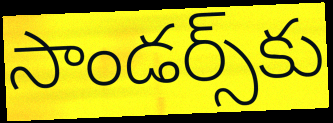
సాండర్స్‌కు